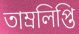
তাম্রলিপ্তি